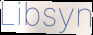
Libsyn